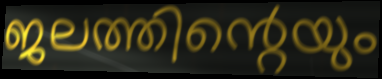
ജലത്തിന്റെയും